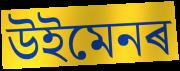
উইমেনৰ